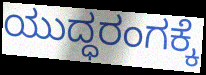
ಯುದ್ಧರಂಗಕ್ಕೆ